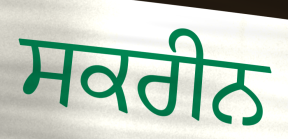
ਸਕਰੀਨ